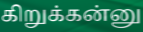
கிறுக்கன்னு